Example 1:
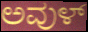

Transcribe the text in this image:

ಅವುಳ್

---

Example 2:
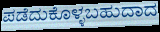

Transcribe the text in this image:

ಪಡೆದುಕೊಳ್ಳಬಹುದಾದ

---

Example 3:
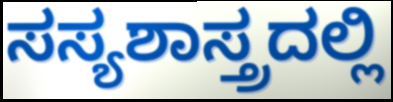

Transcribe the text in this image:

ಸಸ್ಯಶಾಸ್ತ್ರದಲ್ಲಿ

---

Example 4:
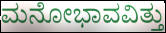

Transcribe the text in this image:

ಮನೋಭಾವವಿತ್ತು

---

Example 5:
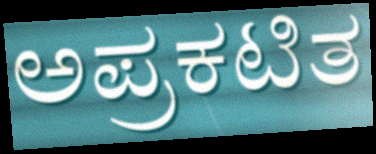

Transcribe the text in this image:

ಅಪ್ರಕಟಿತ